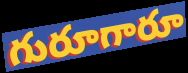
గురూగారూ